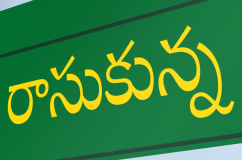
రాసుకున్న